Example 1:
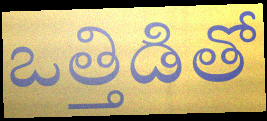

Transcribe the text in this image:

ఒత్తిడితో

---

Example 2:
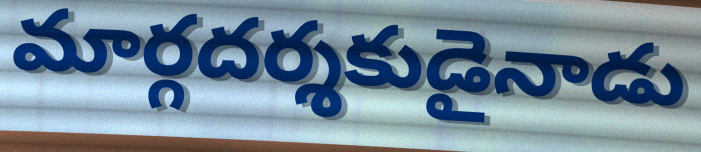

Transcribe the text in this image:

మార్గదర్శకుడైనాడు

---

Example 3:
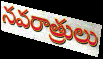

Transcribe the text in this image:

నవరాత్రులు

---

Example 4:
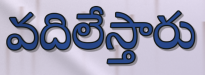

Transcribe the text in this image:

వదిలేస్తారు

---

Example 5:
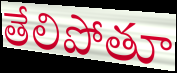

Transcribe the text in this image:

తేలిపోతూ